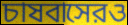
চাষবাসেরও